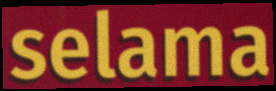
selama